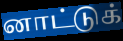
னாட்டுக்